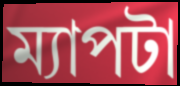
ম্যাপটা